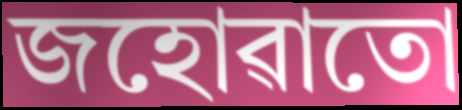
জহোৱাতো